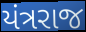
યંત્રરાજ